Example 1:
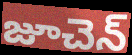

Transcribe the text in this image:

జూచెన్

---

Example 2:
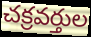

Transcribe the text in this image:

చక్రవర్తుల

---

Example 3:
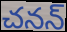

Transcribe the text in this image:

చనన్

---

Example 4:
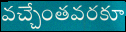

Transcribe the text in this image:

వచ్చేంతవరకూ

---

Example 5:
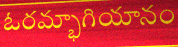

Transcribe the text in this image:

ఓరమ్భాగియానం